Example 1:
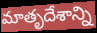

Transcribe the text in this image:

మాతృదేశాన్ని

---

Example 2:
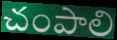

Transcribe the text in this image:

చంపాలి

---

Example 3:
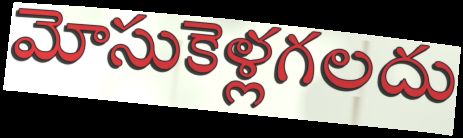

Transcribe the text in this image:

మోసుకెళ్లగలదు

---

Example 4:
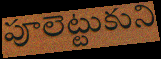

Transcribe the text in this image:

పూలెట్టుకుని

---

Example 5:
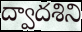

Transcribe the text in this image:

ద్వాదశిని